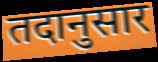
तदानुसार